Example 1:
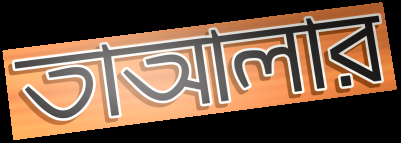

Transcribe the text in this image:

তাআলার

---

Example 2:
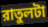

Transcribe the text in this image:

রাতুলটা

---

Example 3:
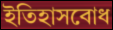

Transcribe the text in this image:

ইতিহাসবোধ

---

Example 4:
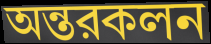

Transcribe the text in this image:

অন্তরকলন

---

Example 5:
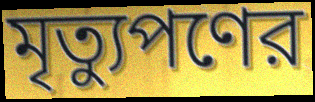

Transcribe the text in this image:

মৃত্যুপণের